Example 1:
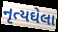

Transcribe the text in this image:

નૃત્યઘેલા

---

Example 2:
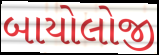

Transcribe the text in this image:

બાયોલોજી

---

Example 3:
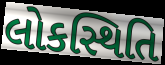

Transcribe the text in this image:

લોકસ્થિતિ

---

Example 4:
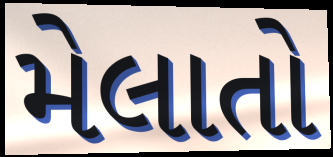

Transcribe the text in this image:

મેલાતો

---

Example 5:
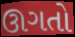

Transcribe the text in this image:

ઊગતો